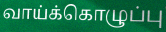
வாய்க்கொழுப்பு